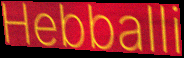
Hebballi